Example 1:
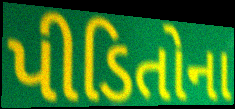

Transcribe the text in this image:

પીડિતોના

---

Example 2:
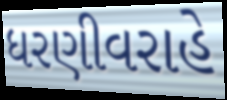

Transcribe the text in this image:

ધરણીવરાહે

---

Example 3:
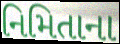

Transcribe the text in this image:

નિમિતાના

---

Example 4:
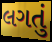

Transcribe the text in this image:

લગતું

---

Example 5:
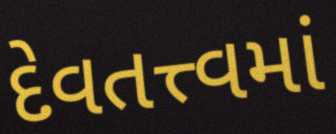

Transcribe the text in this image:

દેવતત્ત્વમાં